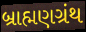
બ્રાહ્મણગ્રંથ